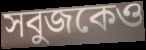
সবুজকেও